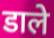
डाले